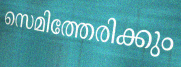
സെമിത്തേരിക്കും